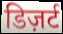
डिज़र्ट